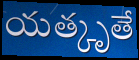
యత్కృతే